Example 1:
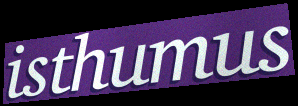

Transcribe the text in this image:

isthumus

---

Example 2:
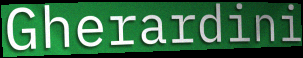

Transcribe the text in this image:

Gherardini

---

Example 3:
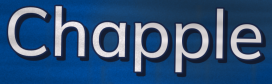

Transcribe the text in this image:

Chapple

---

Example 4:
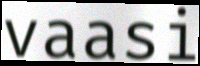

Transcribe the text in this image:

vaasi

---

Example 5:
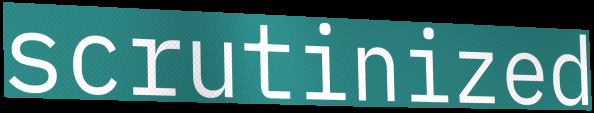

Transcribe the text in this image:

scrutinized